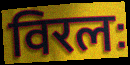
विरलः